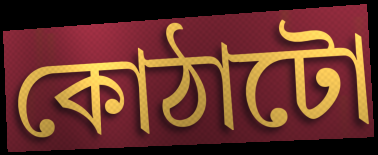
কোঠাটো